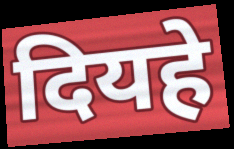
दियहे